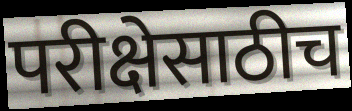
परीक्षेसाठीच